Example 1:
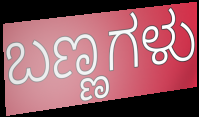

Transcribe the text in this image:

ಬಣ್ಣಗಳು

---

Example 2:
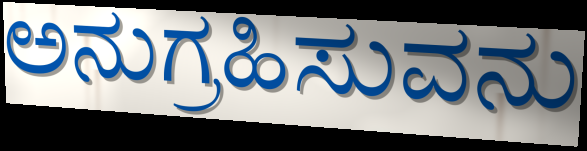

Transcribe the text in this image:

ಅನುಗ್ರಹಿಸುವನು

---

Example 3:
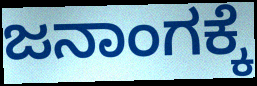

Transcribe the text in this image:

ಜನಾಂಗಕ್ಕೆ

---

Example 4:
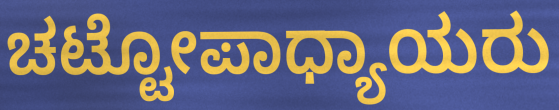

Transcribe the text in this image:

ಚಟ್ಟೋಪಾಧ್ಯಾಯರು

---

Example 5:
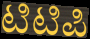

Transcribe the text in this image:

ಟಿಟಿಪಿ